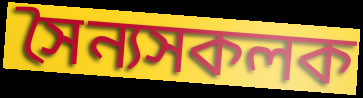
সৈন্যসকলক